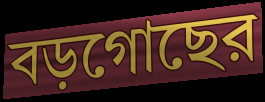
বড়গোছের